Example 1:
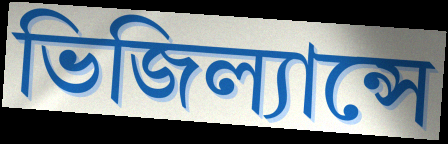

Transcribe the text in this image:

ভিজিল্যান্সে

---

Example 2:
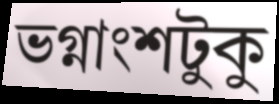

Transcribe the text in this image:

ভগ্নাংশটুকু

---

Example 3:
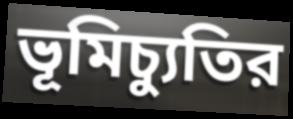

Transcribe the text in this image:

ভূমিচ্যুতির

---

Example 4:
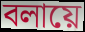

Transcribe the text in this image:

বলায়ে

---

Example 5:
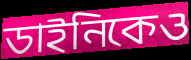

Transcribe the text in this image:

ডাইনিকেও